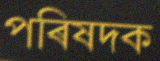
পৰিষদক